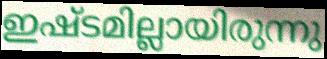
ഇഷ്ടമില്ലായിരുന്നു